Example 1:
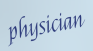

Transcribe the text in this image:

physician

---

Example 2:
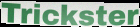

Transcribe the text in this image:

Trickster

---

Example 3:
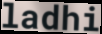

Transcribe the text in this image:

ladhi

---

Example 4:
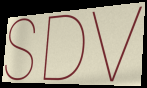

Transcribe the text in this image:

SDV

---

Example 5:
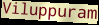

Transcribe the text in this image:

Viluppuram